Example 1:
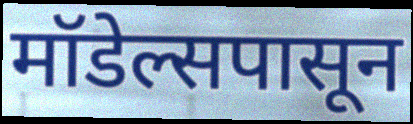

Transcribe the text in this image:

मॉडेल्सपासून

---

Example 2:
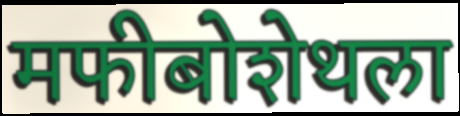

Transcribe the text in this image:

मफीबोशेथला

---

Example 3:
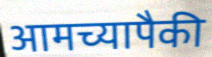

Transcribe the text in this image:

आमच्यापैकी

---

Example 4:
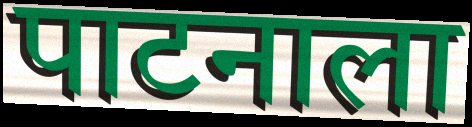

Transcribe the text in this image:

पाटनाला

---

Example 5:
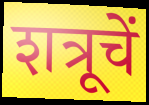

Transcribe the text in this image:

शत्रूचें